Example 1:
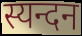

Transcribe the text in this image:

स्यन्दन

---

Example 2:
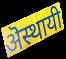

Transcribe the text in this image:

ऄस्थायी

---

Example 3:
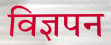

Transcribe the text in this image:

विज्ञपन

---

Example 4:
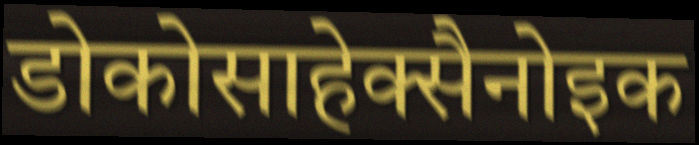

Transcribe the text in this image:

डोकोसाहेक्सैनोइक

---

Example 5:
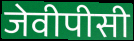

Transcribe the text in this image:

जेवीपीसी